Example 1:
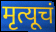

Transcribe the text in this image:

मृत्यूचं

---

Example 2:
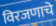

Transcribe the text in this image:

विरजणाचे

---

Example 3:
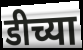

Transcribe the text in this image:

डीच्या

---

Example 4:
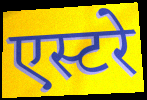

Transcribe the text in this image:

एस्टरे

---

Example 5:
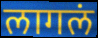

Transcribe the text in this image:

लागलं